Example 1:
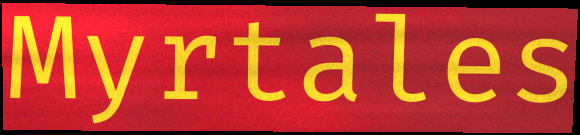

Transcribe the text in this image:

Myrtales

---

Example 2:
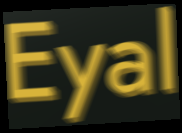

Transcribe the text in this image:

Eyal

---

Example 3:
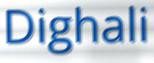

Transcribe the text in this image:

Dighali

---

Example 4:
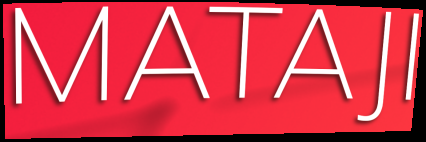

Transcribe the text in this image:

MATAJI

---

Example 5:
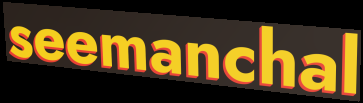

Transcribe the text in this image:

seemanchal